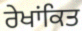
ਰੇਖਾਂਕਿਤ